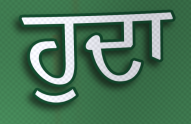
ਹੁਦਾ